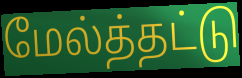
மேல்த்தட்டு